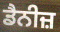
ਡੈਨੀਜ਼